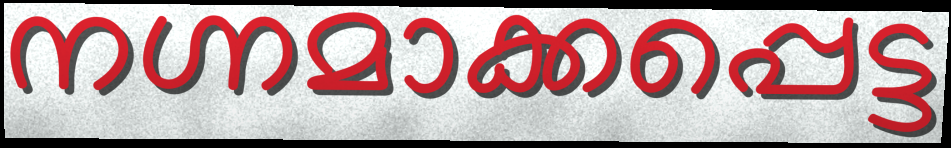
നഗ്നമാക്കപ്പെട്ട